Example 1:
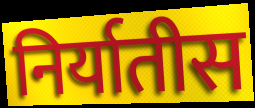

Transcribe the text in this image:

निर्यातीस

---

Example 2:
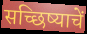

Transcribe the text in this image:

सच्छिष्याचें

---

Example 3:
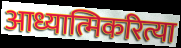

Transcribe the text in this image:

आध्यात्मिकरित्या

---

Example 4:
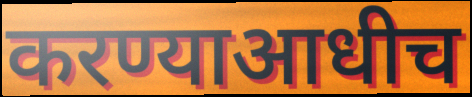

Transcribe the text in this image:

करण्याआधीच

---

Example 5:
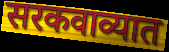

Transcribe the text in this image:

सरकवाव्यात